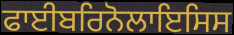
ਫਾਈਬਰਿਨੋਲਾਇਸਿਸ